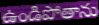
ఉండిపోతాను